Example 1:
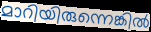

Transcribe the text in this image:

മാറിയിരുന്നെങ്കിൽ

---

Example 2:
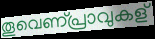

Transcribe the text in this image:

തൂവെണ്പ്രാവുകള്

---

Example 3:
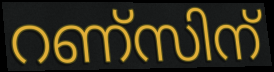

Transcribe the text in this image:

റണ്സിന്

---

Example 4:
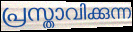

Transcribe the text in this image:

പ്രസ്താവിക്കുന്ന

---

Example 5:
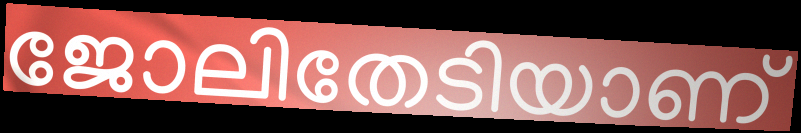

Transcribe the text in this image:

ജോലിതേടിയാണ്